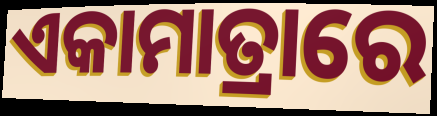
ଏକାମାତ୍ରାରେ